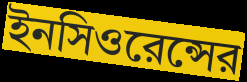
ইনসিওরেন্সের